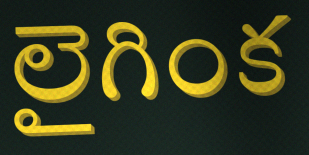
లైగింక